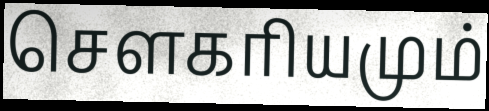
சௌகரியமும்